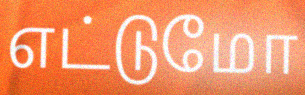
எட்டுமோ